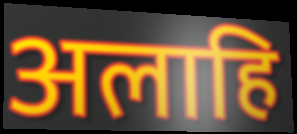
अलाहि